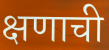
क्षणाची